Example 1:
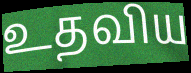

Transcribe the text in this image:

உதவிய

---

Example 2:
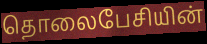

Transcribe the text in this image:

தொலைபேசியின்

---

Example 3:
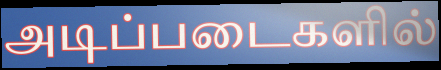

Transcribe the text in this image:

அடிப்படைகளில்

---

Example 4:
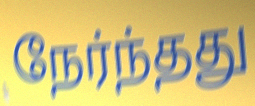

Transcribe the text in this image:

நேர்ந்தது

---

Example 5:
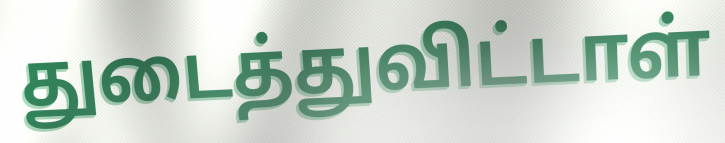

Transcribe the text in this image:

துடைத்துவிட்டாள்